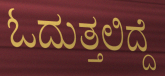
ಓದುತ್ತಲಿದ್ದೆ